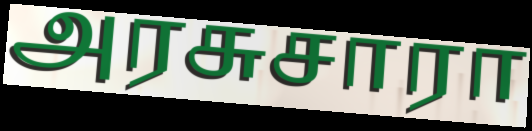
அரசுசாரா